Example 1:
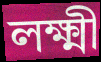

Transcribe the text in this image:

লক্ষ্মী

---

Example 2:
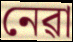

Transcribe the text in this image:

নেৱা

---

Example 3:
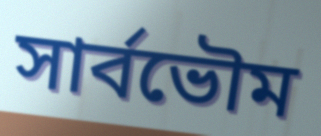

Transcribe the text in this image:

সাৰ্বভৌম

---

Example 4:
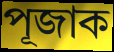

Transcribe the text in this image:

পূজাক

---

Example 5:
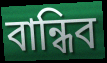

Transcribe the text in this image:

বান্ধিব